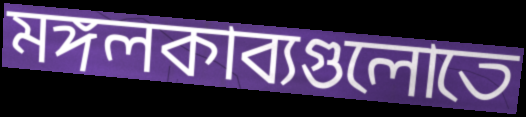
মঙ্গলকাব্যগুলোতে